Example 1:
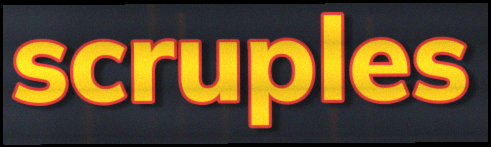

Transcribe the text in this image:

scruples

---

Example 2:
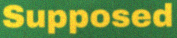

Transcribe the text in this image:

Supposed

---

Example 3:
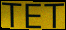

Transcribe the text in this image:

TET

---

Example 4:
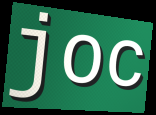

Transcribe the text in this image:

joc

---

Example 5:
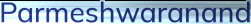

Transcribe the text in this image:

Parmeshwaranand